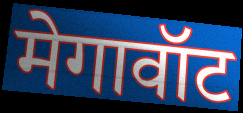
मेगावॉट